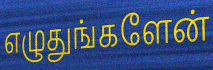
எழுதுங்களேன்